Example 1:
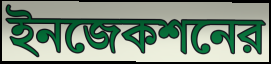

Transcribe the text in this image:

ইনজেকশনের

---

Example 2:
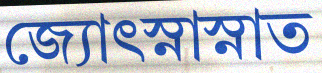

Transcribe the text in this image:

জ্যোৎস্নাস্নাত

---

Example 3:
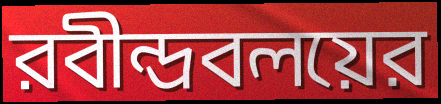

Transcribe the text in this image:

রবীন্দ্রবলয়ের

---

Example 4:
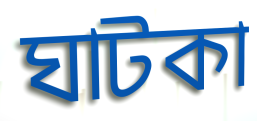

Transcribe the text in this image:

ঘাটকা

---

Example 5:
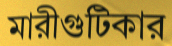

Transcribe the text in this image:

মারীগুটিকার